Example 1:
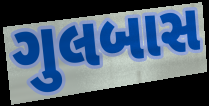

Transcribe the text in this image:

ગુલબાસ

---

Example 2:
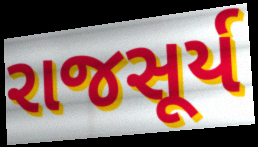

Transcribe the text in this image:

રાજસૂર્ય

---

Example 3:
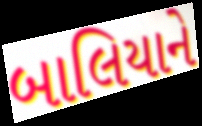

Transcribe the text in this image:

બાલિયાને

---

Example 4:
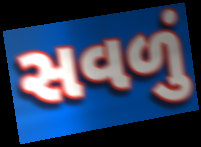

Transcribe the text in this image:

સવળું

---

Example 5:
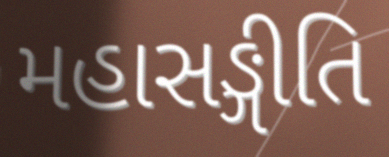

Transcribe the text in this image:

મહાસઙ્ગીતિ